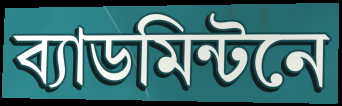
ব্যাডমিন্টনে